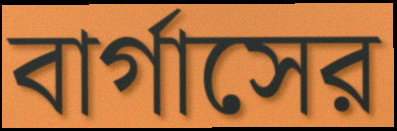
বার্গাসের